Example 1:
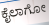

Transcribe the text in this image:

ಕೈಲಾಗೋ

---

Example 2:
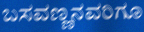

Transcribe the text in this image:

ಬಸವಣ್ಣನವರಿಗೂ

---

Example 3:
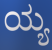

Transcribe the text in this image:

ಯ್ಯ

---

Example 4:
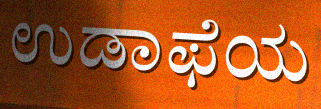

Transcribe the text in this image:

ಉಡಾಫೆಯ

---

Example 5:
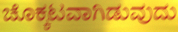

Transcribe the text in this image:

ಚೊಕ್ಕಟವಾಗಿಡುವುದು